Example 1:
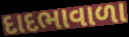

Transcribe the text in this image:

દાદભાવાળા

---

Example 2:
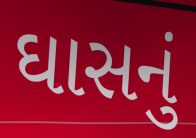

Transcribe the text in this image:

ઘાસનું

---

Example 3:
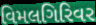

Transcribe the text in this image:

વિમલગિરિવર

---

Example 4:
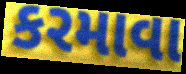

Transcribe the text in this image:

કરમાવા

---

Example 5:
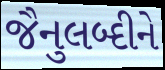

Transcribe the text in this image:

જૈનુલબ્દીને